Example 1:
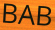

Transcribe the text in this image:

BAB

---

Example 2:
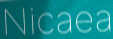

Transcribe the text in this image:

Nicaea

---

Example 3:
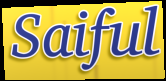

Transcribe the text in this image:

Saiful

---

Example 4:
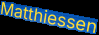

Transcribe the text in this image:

Matthiessen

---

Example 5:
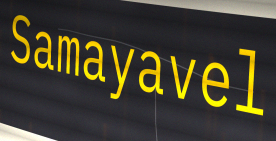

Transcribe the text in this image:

Samayavel